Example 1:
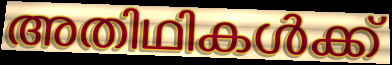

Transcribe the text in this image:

അതിഥികൾക്ക്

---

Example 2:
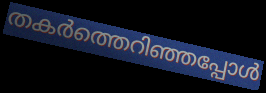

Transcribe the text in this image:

തകർത്തെറിഞ്ഞപ്പോൾ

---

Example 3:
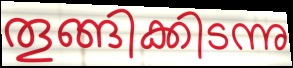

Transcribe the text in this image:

തൂങ്ങിക്കിടന്നു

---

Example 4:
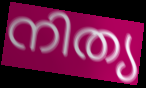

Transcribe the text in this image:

നിത്യ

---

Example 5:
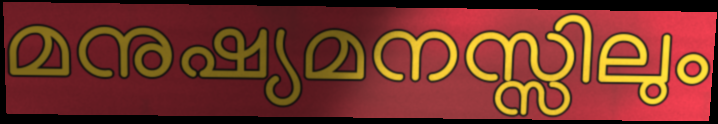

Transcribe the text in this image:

മനുഷ്യമനസ്സിലും